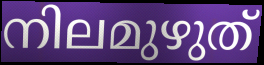
നിലമുഴുത്